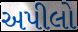
અપીલો